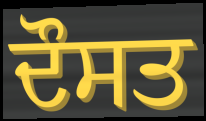
ਦੌਸਤ